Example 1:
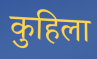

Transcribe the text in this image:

कुहिला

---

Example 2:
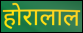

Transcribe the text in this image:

होरालाल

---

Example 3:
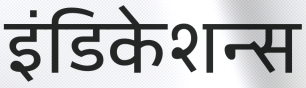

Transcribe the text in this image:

इंडिकेशन्स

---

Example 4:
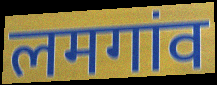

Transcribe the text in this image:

लमगांव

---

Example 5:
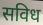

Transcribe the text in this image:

सविध